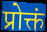
प्रोक्तं